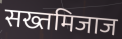
सख्तमिजाज